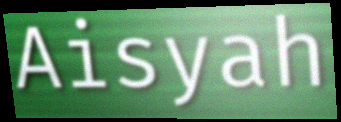
Aisyah